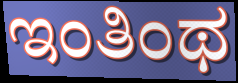
ಇಂತಿಂಥ